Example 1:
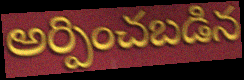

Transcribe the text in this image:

అర్పించబడిన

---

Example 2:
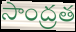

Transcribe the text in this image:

సాంద్రత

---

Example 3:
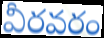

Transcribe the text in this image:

వీరవరం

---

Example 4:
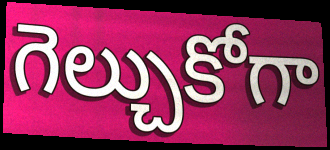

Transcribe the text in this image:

గెల్చుకోగా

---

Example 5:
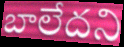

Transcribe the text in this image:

బాలేదని